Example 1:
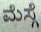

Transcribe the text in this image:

ಮೆಸ್ಗೆ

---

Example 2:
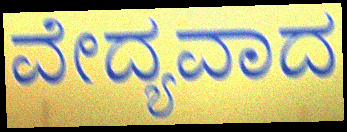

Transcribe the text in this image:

ವೇದ್ಯವಾದ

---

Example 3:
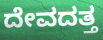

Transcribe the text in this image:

ದೇವದತ್ತ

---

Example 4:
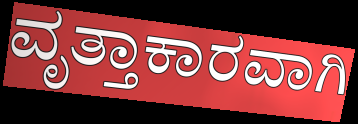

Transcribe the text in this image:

ವೃತ್ತಾಕಾರವಾಗಿ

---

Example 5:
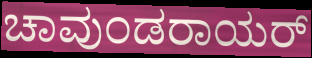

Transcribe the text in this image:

ಚಾವುಂಡರಾಯರ್